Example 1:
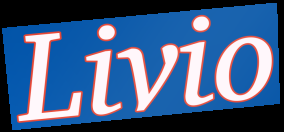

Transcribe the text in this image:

Livio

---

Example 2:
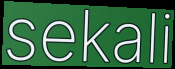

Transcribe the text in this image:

sekali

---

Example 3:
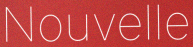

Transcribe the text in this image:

Nouvelle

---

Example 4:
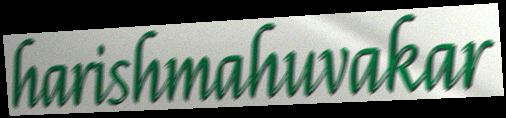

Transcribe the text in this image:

harishmahuvakar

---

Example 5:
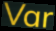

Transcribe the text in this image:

Var